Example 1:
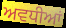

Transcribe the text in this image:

ਅਵਧੀਆਂ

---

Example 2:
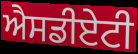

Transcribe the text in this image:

ਐਸਡੀਏਟੀ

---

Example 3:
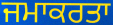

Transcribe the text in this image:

ਜਮਾਕਰਤਾ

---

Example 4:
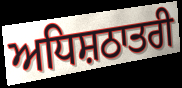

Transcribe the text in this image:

ਅਧਿਸ਼ਠਾਤਰੀ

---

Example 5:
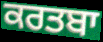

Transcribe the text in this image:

ਕਰਤਬਾ